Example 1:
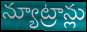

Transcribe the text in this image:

న్యూట్రాన్లు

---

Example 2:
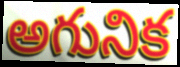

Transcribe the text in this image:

అగునిక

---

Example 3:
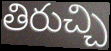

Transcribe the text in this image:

తిరుచ్చి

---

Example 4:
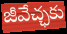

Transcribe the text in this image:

జీవేచ్ఛకు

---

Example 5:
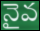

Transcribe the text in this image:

నైవ